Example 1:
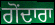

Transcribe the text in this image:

ਗੋਂਦਾਰਾ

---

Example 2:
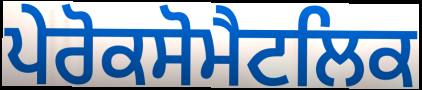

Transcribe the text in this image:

ਪੇਰੋਕਸੋਮੈਟਲਿਕ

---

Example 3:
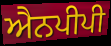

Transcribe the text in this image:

ਐਨਪੀਪੀ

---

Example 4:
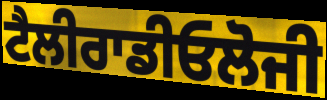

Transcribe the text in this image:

ਟੈਲੀਰਾਡੀਓਲੋਜੀ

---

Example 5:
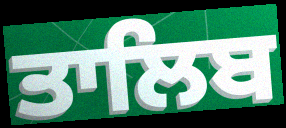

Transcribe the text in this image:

ਤਾਲਿਬ